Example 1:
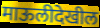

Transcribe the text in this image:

माऊलीदेखील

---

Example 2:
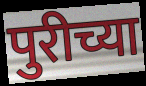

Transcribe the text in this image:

पुरीच्या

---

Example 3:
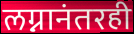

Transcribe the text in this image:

लग्नानंतरही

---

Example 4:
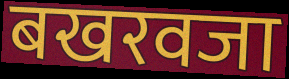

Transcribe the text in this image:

बखरवजा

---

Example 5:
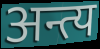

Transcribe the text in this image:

अन्त्य